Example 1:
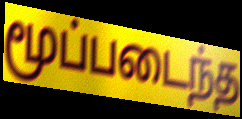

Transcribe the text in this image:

மூப்படைந்த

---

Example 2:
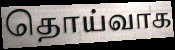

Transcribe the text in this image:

தொய்வாக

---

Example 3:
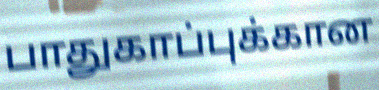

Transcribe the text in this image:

பாதுகாப்புக்கான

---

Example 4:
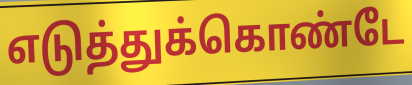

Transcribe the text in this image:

எடுத்துக்கொண்டே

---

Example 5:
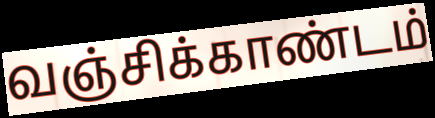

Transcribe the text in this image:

வஞ்சிக்காண்டம்